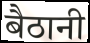
बैठानी